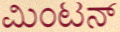
ಮಿಂಟನ್